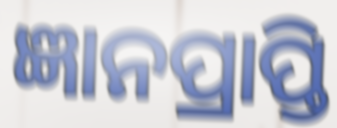
ଜ୍ଞାନପ୍ରାପ୍ତି